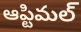
ఆప్టిమల్